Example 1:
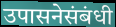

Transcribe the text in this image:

उपासनेसंबंधी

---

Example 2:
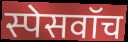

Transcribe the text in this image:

स्पेसवॉच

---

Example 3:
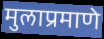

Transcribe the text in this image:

मुलाप्रमाणे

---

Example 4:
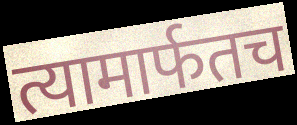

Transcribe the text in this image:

त्यामार्फतच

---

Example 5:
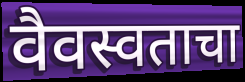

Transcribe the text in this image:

वैवस्वताचा